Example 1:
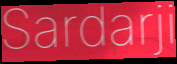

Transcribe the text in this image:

Sardarji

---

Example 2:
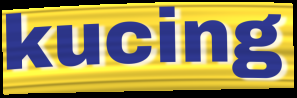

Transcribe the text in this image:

kucing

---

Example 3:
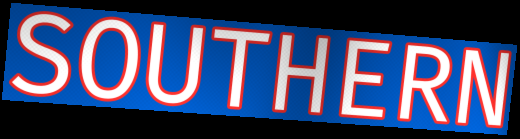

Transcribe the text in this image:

SOUTHERN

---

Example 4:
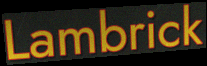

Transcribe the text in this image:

Lambrick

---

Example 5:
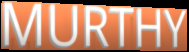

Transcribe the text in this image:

MURTHY